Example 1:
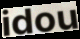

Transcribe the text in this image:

idou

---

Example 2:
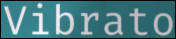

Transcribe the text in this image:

Vibrato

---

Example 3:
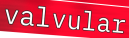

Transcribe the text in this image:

valvular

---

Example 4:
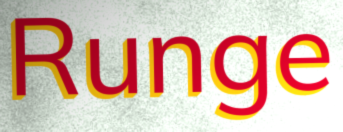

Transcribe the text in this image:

Runge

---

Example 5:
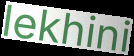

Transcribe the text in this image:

lekhini